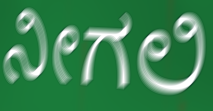
ನೀಗಲಿ